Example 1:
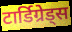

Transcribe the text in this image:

टार्डिग्रेड्स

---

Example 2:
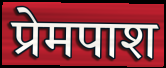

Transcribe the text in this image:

प्रेमपाश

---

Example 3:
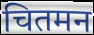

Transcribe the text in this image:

चितमन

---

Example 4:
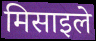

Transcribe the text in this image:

मिसाइले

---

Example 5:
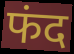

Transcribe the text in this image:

फंद